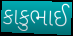
કાકુભાઈ